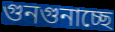
গুনগুনাচ্ছে